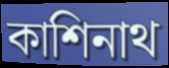
কাশিনাথ